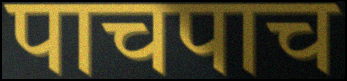
पाचपाच